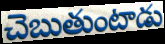
చెబుతుంటాడు